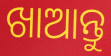
ଖାଆନ୍ତୁ